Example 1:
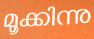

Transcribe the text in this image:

മൂക്കിന്നു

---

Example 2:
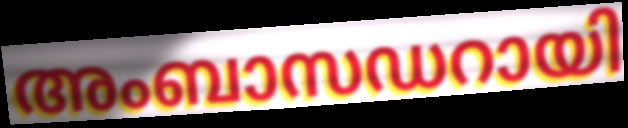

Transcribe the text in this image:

അംബാസഡറായി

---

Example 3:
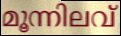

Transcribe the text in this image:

മൂന്നിലവ്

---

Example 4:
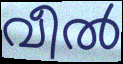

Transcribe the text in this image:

വീൽ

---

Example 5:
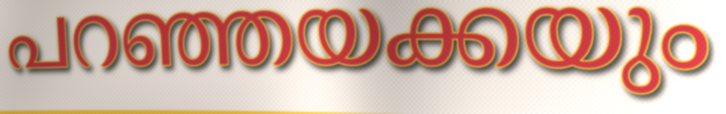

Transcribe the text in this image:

പറഞ്ഞയക്കയും